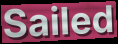
Sailed